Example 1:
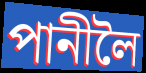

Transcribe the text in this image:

পানীলৈ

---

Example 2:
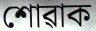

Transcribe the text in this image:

শোৱাক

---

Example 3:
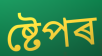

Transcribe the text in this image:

ষ্টেপৰ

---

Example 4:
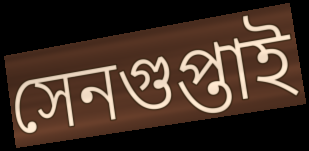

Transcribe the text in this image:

সেনগুপ্তাই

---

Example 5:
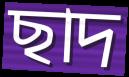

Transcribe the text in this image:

ছাদ